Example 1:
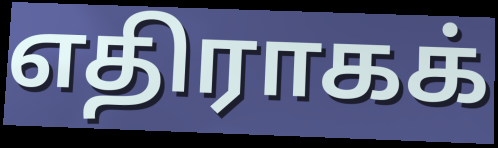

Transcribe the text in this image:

எதிராகக்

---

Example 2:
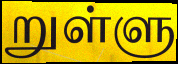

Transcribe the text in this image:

றுள்ளு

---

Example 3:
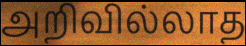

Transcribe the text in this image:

அறிவில்லாத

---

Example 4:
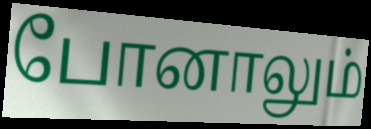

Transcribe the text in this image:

போனாலும்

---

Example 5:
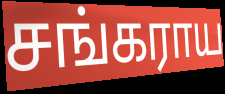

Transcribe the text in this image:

சங்கராய